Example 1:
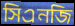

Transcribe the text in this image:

সিএনজি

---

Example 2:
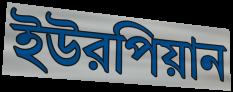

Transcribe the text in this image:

ইউরপিয়ান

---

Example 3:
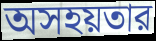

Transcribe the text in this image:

অসহয়তার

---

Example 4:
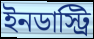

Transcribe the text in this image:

ইনডাস্ট্রি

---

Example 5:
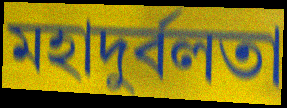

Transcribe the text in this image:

মহাদুর্বলতা